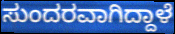
ಸುಂದರವಾಗಿದ್ದಾಳೆ